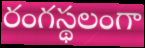
రంగస్థలంగా